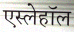
एस्लेहॉल